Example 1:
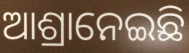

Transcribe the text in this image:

ଆଶ୍ରାନେଇଛି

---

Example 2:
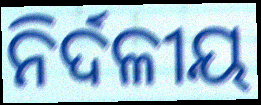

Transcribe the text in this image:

ନିର୍ଦଳୀୟ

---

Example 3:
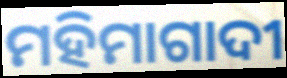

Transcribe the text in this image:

ମହିମାଗାଦୀ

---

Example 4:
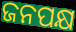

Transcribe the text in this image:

ଜନପକ୍ଷ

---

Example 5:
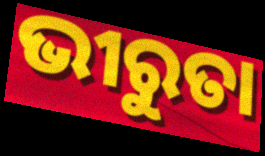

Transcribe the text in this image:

ଭୀରୁତା